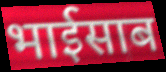
भाईसाब